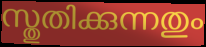
സ്തുതിക്കുന്നതും